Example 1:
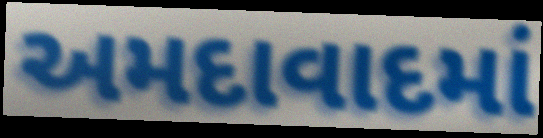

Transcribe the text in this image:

અમદાવાદમાં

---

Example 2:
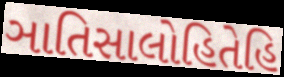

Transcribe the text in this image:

ઞાતિસાલોહિતેહિ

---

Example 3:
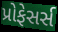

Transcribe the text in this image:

પ્રોફેસર્સ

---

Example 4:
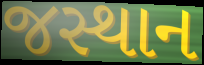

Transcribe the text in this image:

જસ્થાન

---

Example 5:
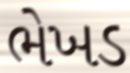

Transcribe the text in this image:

ભેખડ